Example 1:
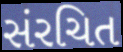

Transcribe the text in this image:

સંરચિત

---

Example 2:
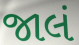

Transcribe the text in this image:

જાલં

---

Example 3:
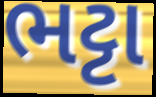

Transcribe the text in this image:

ભટ્ટા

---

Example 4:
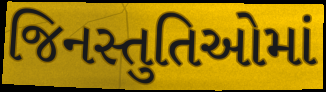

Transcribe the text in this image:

જિનસ્તુતિઓમાં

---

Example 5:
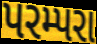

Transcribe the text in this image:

પરમ્પરા